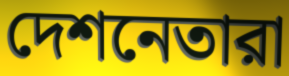
দেশনেতারা